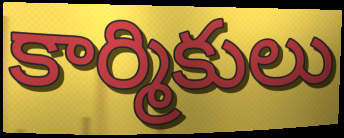
కార్మికులు